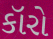
કૉરો